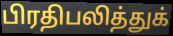
பிரதிபலித்துக்